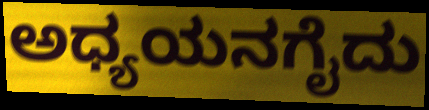
ಅಧ್ಯಯನಗೈದು